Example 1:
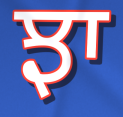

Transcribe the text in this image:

ਝਾ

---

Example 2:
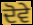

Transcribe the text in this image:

ਦੋਵੇ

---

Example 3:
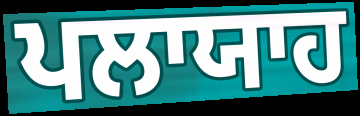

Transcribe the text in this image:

ਪਲਾਯਾਹ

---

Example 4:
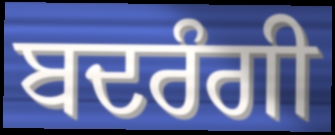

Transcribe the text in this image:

ਬਦਰੰਗੀ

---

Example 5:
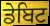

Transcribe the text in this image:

ਡੇਬਿਟ